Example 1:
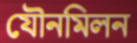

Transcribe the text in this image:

যৌনমিলন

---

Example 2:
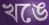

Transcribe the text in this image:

খঙে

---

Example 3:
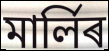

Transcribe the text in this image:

মাৰ্লিৰ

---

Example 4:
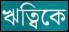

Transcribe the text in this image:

ঋত্বিকে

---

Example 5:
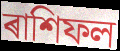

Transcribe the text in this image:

ৰাশিফল